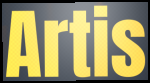
Artis